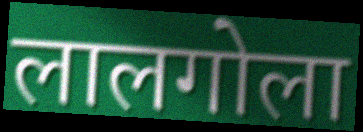
लालगोला